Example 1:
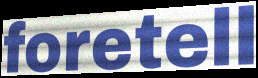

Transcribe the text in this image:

foretell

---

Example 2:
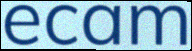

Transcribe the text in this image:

ecam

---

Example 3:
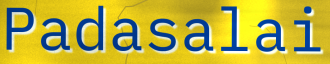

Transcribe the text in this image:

Padasalai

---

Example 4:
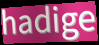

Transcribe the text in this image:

hadige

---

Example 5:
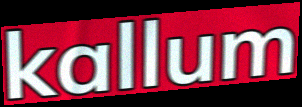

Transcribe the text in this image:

kallum